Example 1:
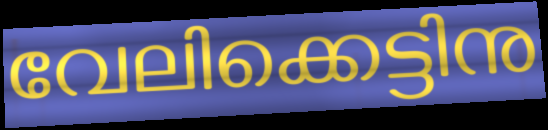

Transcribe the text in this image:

വേലിക്കെട്ടിനു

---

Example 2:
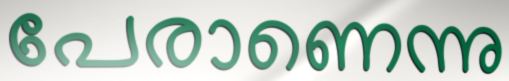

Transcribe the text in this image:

പേരാണെന്നു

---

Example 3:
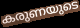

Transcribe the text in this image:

കരുണയുടെ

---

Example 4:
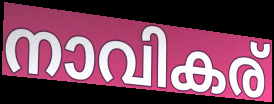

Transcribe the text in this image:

നാവികര്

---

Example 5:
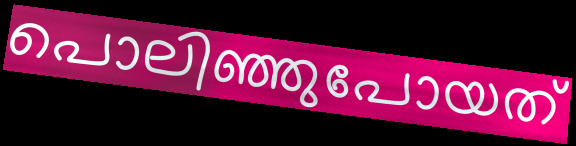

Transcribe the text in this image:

പൊലിഞ്ഞുപോയത്